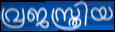
വ്രജസ്ത്രിയ